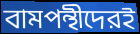
বামপন্থীদেরই